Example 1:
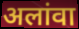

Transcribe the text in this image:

अलांवा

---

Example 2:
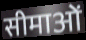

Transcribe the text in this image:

सीमाओं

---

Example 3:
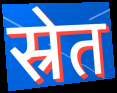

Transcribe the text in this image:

स्रेत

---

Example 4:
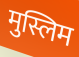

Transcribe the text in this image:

मुस्लिम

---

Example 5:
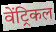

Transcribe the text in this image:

वेंट्रिकल